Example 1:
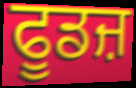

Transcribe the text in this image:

ਫੂਡਜ਼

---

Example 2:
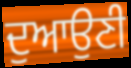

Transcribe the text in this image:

ਦੁਆਉਣੀ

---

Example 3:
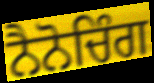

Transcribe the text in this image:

ਨੈਨੋਚਿੰਗ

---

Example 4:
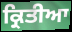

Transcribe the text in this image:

ਕ੍ਰਿਤੀਆ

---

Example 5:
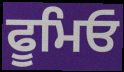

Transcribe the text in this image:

ਫੂਮਿਓ